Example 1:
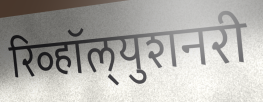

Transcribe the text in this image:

रिव्हॉल्युशनरी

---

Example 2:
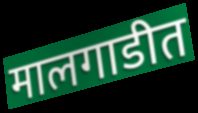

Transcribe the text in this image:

मालगाडीत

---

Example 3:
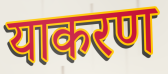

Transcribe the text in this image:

याकरण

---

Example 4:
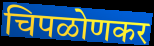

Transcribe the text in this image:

चिपळोणकर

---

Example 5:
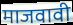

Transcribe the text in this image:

माजवावी